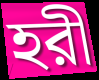
হরী